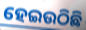
ହେଇଉଠିଛି